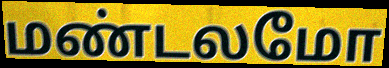
மண்டலமோ